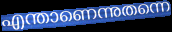
എന്താണെന്നുതന്നെ